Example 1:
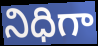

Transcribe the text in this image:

నిధిగా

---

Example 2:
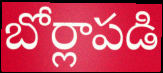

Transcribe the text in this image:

బోర్లాపడి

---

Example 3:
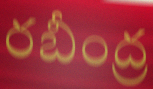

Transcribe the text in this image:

రబీంద్ర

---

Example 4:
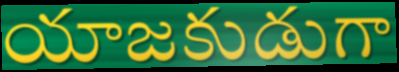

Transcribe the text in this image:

యాజకుడుగా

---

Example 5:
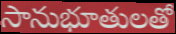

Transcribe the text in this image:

సానుభూతులతో